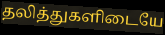
தலித்துகளிடையே